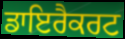
ਡਾਇਰੈਕਰਟ